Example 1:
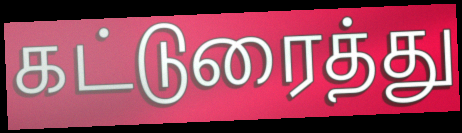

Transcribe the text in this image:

கட்டுரைத்து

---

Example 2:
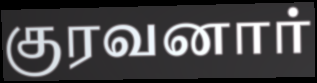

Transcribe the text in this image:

குரவனார்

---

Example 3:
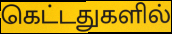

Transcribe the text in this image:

கெட்டதுகளில்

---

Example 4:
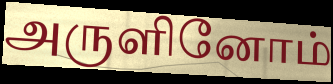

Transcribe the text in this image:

அருளினோம்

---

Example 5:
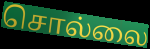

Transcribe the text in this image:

சொல்லை